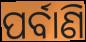
ପର୍ବାଣି